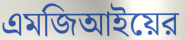
এমজিআইয়ের